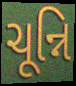
ચૂન્નિ